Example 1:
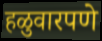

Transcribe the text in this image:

हळुवारपणे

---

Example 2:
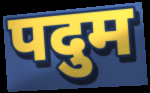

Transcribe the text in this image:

पदुम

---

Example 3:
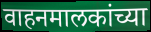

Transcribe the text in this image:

वाहनमालकांच्या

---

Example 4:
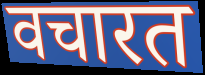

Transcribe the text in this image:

वचारत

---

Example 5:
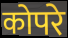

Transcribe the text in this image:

कोपरे